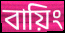
বায়িং